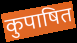
कुपाषित